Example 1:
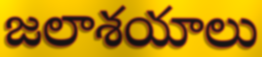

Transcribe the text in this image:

జలాశయాలు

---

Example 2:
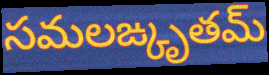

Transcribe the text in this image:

సమలఙ్కృతమ్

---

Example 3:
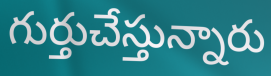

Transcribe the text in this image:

గుర్తుచేస్తున్నారు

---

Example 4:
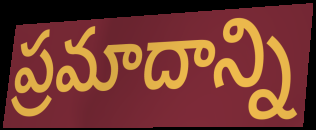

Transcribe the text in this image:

ప్రమాదాన్ని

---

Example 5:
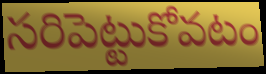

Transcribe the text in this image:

సరిపెట్టుకోవటం